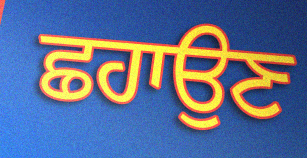
ਛਹਾਉਣ